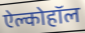
ऐल्कोहॉल